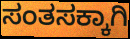
ಸಂತಸಕ್ಕಾಗಿ